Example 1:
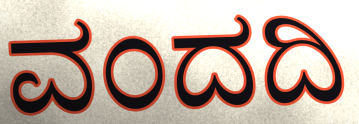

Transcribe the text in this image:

ವಂದದಿ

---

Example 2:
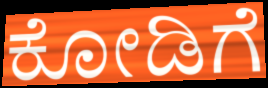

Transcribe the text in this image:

ಕೋಡಿಗೆ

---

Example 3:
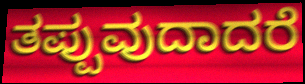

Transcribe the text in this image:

ತಪ್ಪುವುದಾದರೆ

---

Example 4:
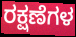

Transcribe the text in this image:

ರಕ್ಷಣೆಗಳ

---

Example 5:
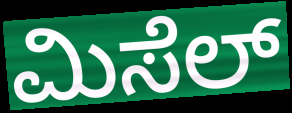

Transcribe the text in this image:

ಮಿಸೆಲ್